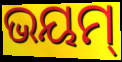
ଭୟମ୍